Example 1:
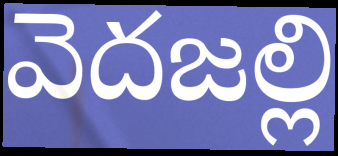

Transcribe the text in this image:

వెదజల్లి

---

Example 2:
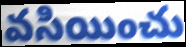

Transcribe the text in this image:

వసియించు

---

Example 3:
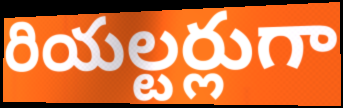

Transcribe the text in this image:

రియల్టర్లుగా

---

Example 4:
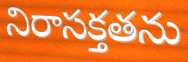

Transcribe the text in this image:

నిరాసక్తతను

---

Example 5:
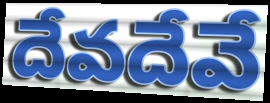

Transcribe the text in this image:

దేవదేవే